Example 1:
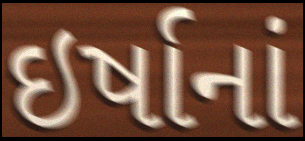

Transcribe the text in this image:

ઇર્ષાનાં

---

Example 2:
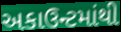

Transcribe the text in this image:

અકાઉન્ટમાંથી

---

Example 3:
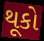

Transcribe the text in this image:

થૂકો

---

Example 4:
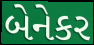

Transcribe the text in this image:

બેનેકર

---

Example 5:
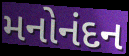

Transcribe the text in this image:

મનોનંદન